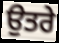
ਉਤਰੇ